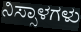
ನಿಸ್ಸಾಳಗಳು